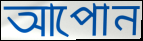
আপোন